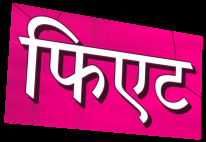
फिएट